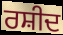
ਰਸ਼ੀਦ